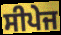
ਸੀਪੇਜ